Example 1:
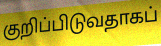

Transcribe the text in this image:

குறிப்பிடுவதாகப்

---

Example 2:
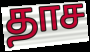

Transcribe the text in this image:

தாச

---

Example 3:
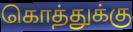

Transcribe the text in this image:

கொத்துக்கு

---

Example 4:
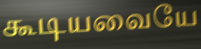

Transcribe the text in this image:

கூடியவையே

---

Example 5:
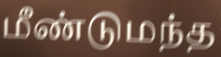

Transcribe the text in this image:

மீண்டுமந்த